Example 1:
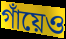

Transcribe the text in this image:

গাঁয়েও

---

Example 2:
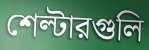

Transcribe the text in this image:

শেল্টারগুলি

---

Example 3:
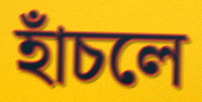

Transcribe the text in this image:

হাঁচলে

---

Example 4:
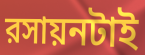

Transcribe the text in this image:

রসায়নটাই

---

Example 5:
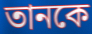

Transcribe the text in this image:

তানকে